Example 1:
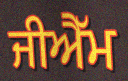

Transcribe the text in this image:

ਜੀਐੱਮ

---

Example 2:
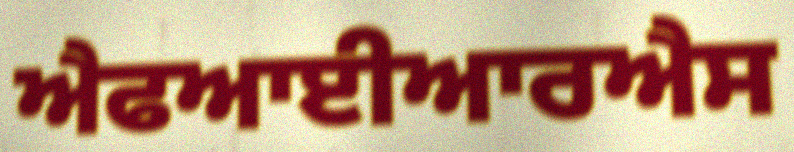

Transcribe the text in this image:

ਐਫਆਈਆਰਐਸ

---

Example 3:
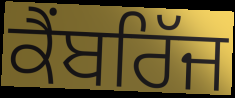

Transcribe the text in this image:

ਕੈਂਬਰਿੱਜ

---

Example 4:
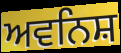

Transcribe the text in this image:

ਅਵਨਿਸ਼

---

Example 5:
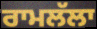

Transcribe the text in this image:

ਰਾਮਲੱਲਾ